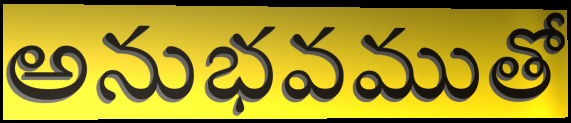
అనుభవముతో